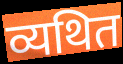
व्यथित